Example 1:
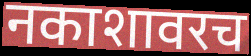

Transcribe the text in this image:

नकाशावरच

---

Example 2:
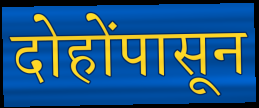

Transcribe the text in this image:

दोहोंपासून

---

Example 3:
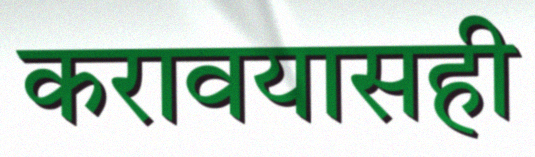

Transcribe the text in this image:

करावयासही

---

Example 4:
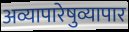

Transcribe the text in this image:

अव्यापारेषुव्यापार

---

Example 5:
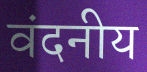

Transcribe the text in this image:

वंदनीय